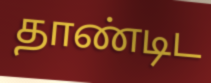
தாண்டிட